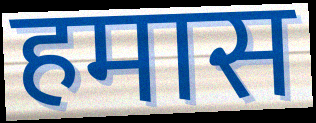
हमास